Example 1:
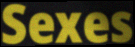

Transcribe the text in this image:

Sexes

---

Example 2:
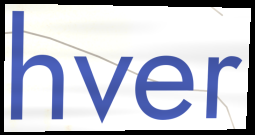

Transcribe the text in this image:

hver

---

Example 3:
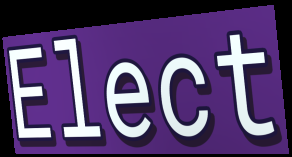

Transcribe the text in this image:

Elect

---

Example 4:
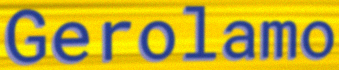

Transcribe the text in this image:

Gerolamo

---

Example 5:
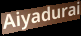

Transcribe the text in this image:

Aiyadurai